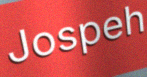
Jospeh